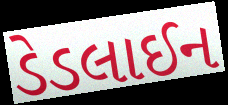
ડેડલાઈન